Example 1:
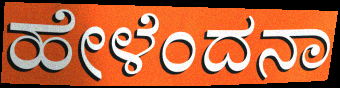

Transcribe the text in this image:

ಹೇಳೆಂದನಾ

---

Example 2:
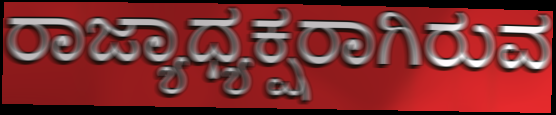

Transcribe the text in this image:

ರಾಜ್ಯಾಧ್ಯಕ್ಷರಾಗಿರುವ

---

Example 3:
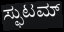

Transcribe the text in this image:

ಸ್ಫುಟಮ್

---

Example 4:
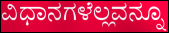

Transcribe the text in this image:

ವಿಧಾನಗಳೆಲ್ಲವನ್ನೂ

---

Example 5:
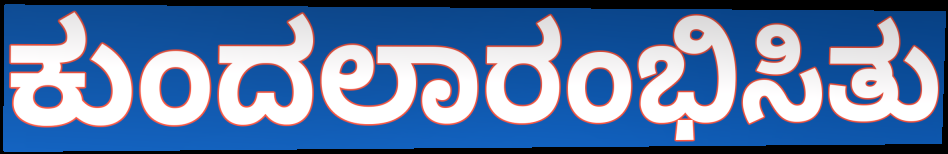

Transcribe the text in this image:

ಕುಂದಲಾರಂಭಿಸಿತು